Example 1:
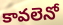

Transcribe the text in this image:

కావలెనో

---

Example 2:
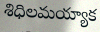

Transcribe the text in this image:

శిధిలమయ్యాక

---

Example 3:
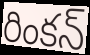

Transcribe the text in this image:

రింకన్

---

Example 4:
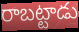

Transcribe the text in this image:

రాబట్టాడు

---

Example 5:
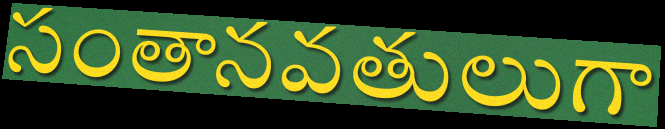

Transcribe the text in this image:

సంతానవతులుగా